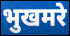
भुखमरे